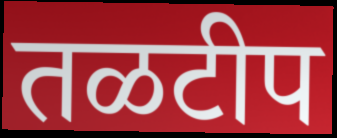
तळटीप